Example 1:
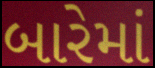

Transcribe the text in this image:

બારેમાં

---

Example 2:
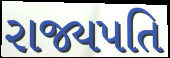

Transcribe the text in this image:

રાજ્યપતિ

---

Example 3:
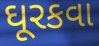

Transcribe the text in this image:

ઘૂરકવા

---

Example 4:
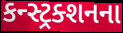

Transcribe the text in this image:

કન્સ્ટ્રક્શનના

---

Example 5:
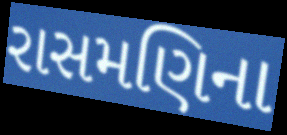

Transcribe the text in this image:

રાસમણિના